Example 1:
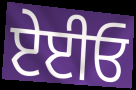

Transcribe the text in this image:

ਏਈਓ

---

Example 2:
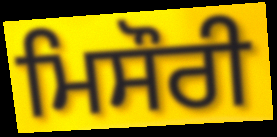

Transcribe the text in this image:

ਮਿਸੌਰੀ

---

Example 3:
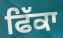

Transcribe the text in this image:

ਫਿੱਕਾ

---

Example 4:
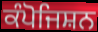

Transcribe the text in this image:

ਕੰਪੋਜਿਸ਼ਨ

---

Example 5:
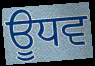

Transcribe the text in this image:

ਊਧਵ